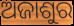
ଅଜାଶୁର